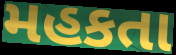
મહકતા